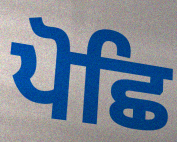
ਪੋਛਿ